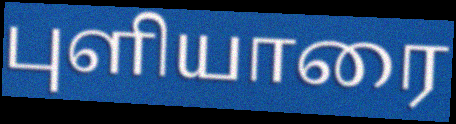
புளியாரை